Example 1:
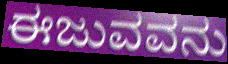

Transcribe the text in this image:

ಈಜುವವನು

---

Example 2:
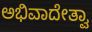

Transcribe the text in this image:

ಅಭಿವಾದೇತ್ವಾ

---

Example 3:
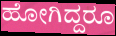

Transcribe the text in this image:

ಹೋಗಿದ್ದರೂ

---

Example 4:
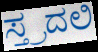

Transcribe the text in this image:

ಸ್ತ್ರದಲಿ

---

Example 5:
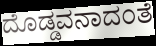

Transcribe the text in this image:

ದೊಡ್ಡವನಾದಂತೆ